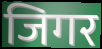
जिगर